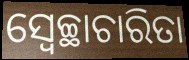
ସ୍ୱେଚ୍ଛାଚାରିତା